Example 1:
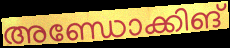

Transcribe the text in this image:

അണ്ഡോക്കിങ്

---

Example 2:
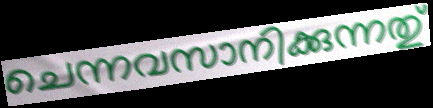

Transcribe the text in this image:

ചെന്നവസാനിക്കുന്നതു്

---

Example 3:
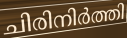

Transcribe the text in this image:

ചിരിനിർത്തി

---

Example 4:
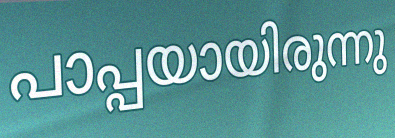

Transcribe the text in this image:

പാപ്പയായിരുന്നു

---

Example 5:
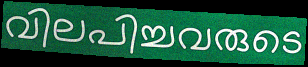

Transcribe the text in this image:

വിലപിച്ചവരുടെ